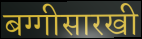
बग्गीसारखी